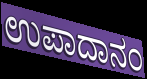
ಉಪಾದಾನಂ